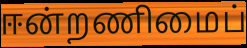
ஈன்றணிமைப்